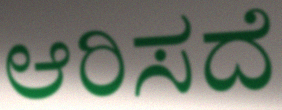
ಆರಿಸದೆ